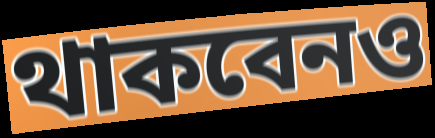
থাকবেনও